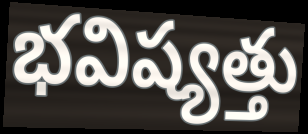
భవిష్యత్తు